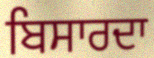
ਬਿਸਾਰਦਾ